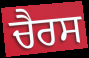
ਚੈਰਸ